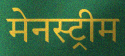
मेनस्‍ट्रीम